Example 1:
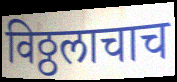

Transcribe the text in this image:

विठ्ठलाचाच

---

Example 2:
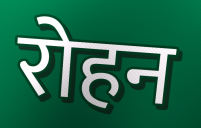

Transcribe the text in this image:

रोहन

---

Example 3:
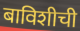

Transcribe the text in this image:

बाविशीची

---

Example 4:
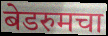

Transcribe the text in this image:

बेडरुमचा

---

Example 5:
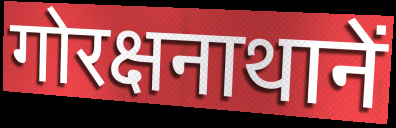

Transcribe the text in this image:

गोरक्षनाथानें